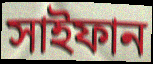
সাইফান